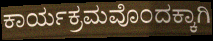
ಕಾರ್ಯಕ್ರಮವೊಂದಕ್ಕಾಗಿ